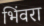
भिंवरा